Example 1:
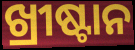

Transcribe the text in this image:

ଖ୍ରୀଷ୍ଟାନ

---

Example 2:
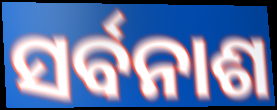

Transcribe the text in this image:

ସର୍ବନାଶ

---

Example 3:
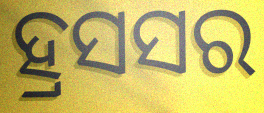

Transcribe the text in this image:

ହ୍ରସସର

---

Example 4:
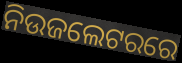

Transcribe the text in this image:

ନିଉଜଲେଟରରେ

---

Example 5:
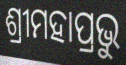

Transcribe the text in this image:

ଶ୍ରୀମହାପ୍ରଭୁ